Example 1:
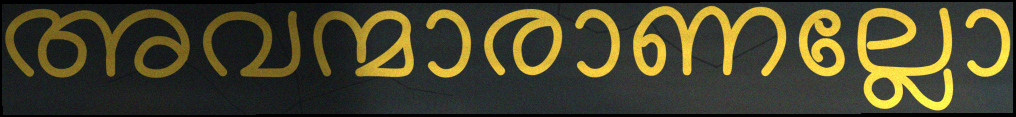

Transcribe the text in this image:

അവന്മാരാണല്ലോ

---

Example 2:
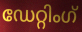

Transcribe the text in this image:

ഡേറ്റിംഗ്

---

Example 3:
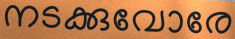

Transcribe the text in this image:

നടക്കുവോരേ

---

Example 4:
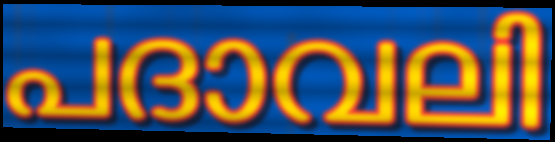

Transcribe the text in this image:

പദാവലി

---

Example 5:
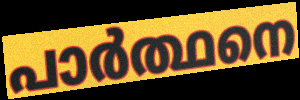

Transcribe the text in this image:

പാർത്ഥനെ